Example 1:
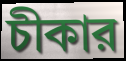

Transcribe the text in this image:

চীকার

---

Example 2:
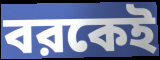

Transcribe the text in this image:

বরকেই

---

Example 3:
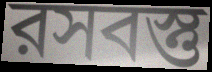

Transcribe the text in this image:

রসবস্তু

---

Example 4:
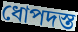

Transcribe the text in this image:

ধোপদস্ত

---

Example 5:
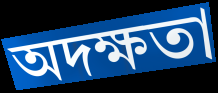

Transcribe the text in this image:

অদক্ষতা